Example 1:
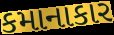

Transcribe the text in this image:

કમાનાકાર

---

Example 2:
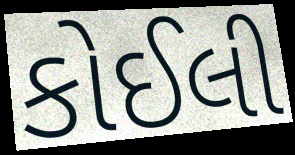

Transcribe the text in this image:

કોઈલી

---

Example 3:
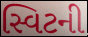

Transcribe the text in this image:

સ્વિટની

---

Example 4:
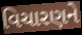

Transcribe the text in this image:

વિચારણને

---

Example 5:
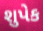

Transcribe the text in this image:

શુપેક